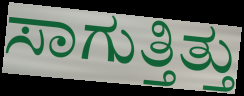
ಸಾಗುತ್ತಿತ್ತು